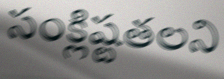
సంక్లిష్టతలని